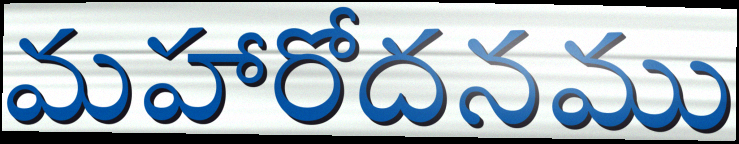
మహారోదనము